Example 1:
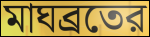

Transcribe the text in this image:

মাঘব্রতের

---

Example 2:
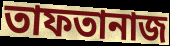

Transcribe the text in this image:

তাফতানাজ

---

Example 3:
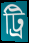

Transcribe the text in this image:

ট্রি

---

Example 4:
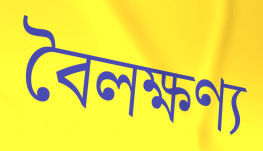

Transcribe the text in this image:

বৈলক্ষণ্য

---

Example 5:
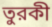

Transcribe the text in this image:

তুরকী